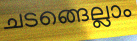
ചടങ്ങെല്ലാം